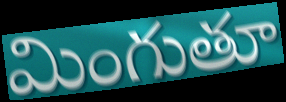
మింగుతూ